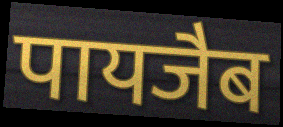
पायजैब